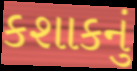
કશાકનું